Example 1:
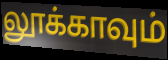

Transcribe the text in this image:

லூக்காவும்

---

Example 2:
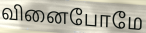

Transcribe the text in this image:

வினைபோமே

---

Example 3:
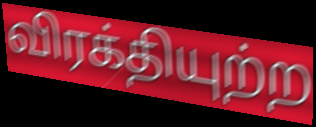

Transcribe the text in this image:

விரக்தியுற்ற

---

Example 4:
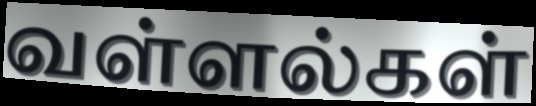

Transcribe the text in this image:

வள்ளல்கள்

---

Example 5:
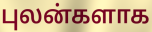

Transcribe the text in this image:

புலன்களாக